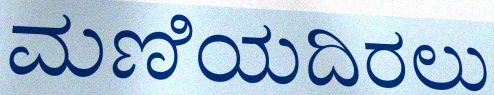
ಮಣಿಯದಿರಲು